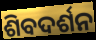
ଶିବଦର୍ଶନ